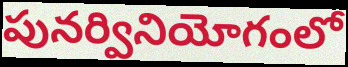
పునర్వినియోగంలో